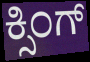
ಕ್ಸಿಂಗ್